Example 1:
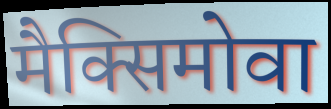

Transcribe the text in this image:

मैक्सिमोवा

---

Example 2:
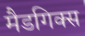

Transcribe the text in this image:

मैडगिक्स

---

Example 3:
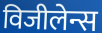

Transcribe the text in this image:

विजीलेन्स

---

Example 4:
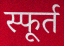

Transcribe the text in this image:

स्फूर्त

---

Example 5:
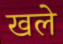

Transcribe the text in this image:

खले